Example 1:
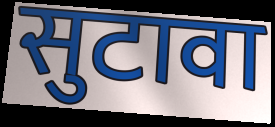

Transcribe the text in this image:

सुटावा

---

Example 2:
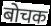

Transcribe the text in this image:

बोचक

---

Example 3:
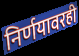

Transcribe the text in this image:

निर्णयावरही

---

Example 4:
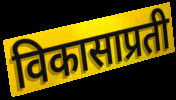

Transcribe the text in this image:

विकासाप्रती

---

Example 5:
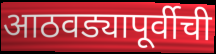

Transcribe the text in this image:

आठवड्यापूर्वीची